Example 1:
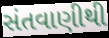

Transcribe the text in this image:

સંતવાણીથી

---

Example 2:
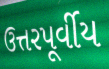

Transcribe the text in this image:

ઉત્તરપૂર્વીય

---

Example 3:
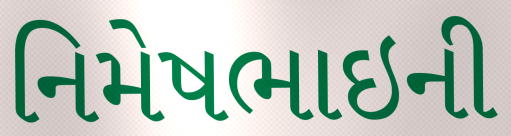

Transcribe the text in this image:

નિમેષભાઇની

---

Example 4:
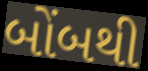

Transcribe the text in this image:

બોંબથી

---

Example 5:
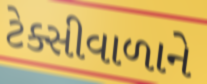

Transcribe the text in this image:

ટેક્સીવાળાને